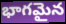
భాగమైన